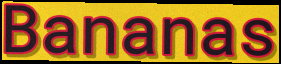
Bananas